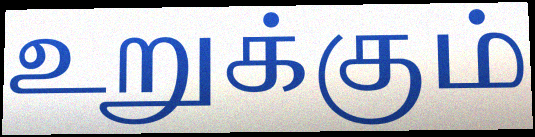
உறுக்கும்